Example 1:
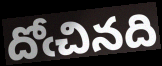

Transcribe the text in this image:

దోఁచినది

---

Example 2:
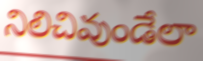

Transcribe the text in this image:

నిలిచివుండేలా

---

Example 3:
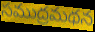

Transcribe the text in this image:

సముద్రమథన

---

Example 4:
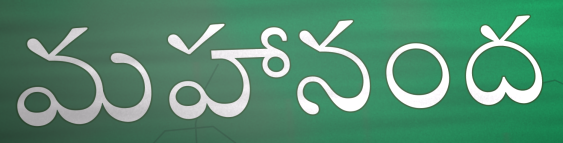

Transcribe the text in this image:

మహానంద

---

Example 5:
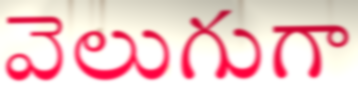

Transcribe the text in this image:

వెలుగుగా